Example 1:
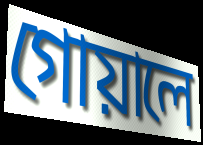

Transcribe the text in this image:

গোয়ালে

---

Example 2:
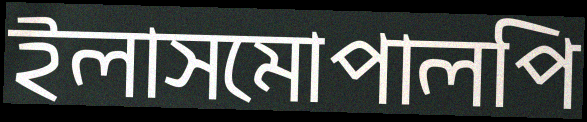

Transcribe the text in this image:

ইলাসমোপালপি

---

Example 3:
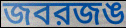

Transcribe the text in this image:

জবরজঙ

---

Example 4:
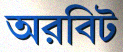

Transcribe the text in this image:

অরবিট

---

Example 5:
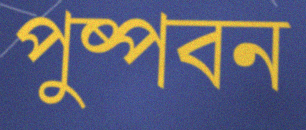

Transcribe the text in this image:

পুষ্পবন